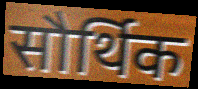
सौर्थिक